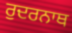
ਰੁਦਰਨਾਥ